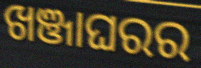
ଖଞ୍ଜାଘରର